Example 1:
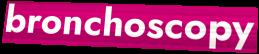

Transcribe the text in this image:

bronchoscopy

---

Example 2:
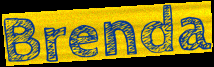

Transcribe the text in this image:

Brenda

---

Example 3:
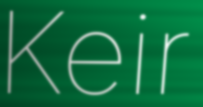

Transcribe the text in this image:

Keir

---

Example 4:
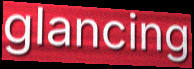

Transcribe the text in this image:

glancing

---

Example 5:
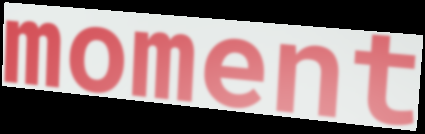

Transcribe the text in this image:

moment